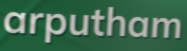
arputham